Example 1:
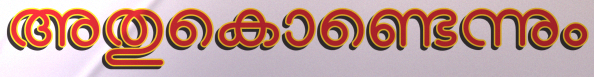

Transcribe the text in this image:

അതുകൊണ്ടെന്നും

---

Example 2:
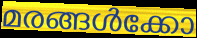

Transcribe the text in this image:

മരങ്ങൾക്കോ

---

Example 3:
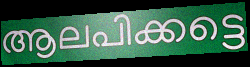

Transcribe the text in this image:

ആലപിക്കട്ടെ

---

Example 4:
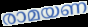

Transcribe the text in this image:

രാമയണ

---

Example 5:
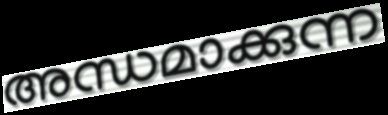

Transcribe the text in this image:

അന്ധമാക്കുന്ന